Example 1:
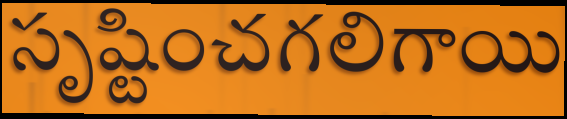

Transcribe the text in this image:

సృష్టించగలిగాయి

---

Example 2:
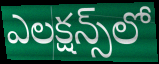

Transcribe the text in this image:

ఎలక్షన్స్‌లో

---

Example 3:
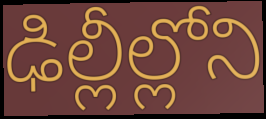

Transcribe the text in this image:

ఢిల్లీల్లోని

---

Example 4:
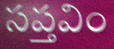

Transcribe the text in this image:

సప్తవిం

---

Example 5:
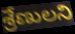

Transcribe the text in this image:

శ్రేణులని